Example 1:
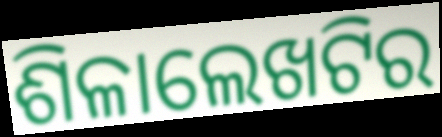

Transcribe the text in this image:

ଶିଳାଲେଖଟିର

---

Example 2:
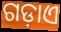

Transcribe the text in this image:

ଗଡ଼ାଏ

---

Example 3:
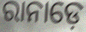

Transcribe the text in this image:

ରାନାଡ଼େ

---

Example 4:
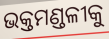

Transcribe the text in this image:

ଭକ୍ତମଣ୍ଡଳୀକୁ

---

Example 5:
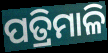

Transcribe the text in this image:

ପତ୍ରିମାଳି